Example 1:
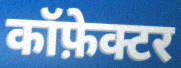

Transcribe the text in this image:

कॉफ़ेक्टर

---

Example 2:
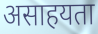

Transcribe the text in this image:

असाहयता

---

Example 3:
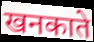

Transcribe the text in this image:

खनकाते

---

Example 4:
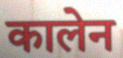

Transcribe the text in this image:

कालेन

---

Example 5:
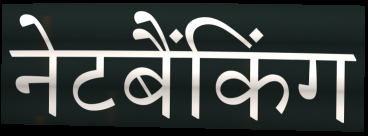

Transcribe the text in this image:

नेटबैंकिंग